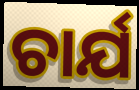
ଚାର୍ଯ